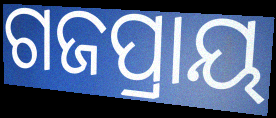
ଗଜପ୍ରାୟ